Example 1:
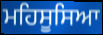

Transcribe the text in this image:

ਮਹਿਸੂਸਿਆ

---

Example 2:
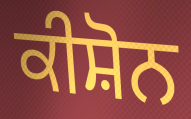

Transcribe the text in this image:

ਕੀਸ਼ੋਨ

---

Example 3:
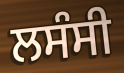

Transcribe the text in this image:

ਲਸੰਸੀ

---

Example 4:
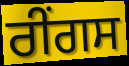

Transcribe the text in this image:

ਰੀਂਗਸ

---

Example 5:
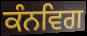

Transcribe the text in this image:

ਕੰਨਵਿਗ